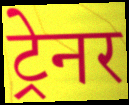
ट्रेनर